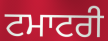
ਟਮਾਟਰੀ